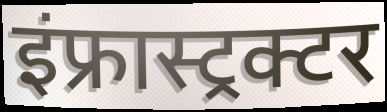
इंफ्रास्ट्रक्टर